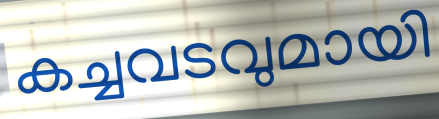
കച്ചവടവുമായി